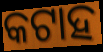
କଟାହ